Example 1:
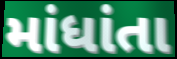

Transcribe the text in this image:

માંધાંતા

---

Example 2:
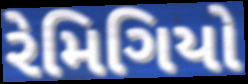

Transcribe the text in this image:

રેમિગિયો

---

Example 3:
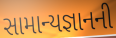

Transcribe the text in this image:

સામાન્યજ્ઞાનની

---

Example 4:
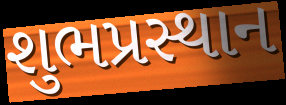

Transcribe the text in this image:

શુભપ્રસ્થાન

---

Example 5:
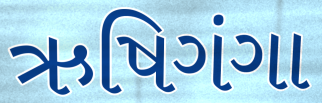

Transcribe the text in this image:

ઋષિગંગા